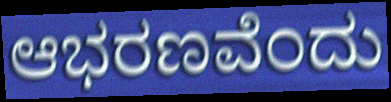
ಆಭರಣವೆಂದು